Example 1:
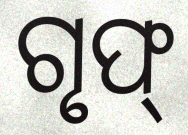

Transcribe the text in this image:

ଗୃଫ୍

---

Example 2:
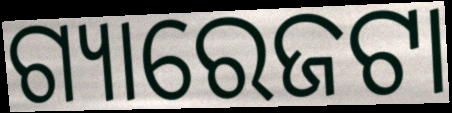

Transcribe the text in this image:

ଗ୍ୟାରେଜଟା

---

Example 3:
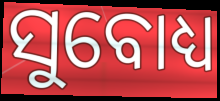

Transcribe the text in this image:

ସୁବୋଧ୍ୟ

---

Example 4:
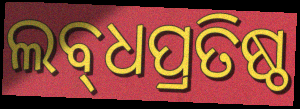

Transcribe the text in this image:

ଲବ୍‌ଧପ୍ରତିଷ୍ଠ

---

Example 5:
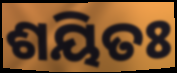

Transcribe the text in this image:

ଶୟିତଃ